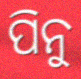
ପିନୁ